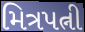
મિત્રપત્ની